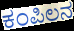
ಕಂಪಿಲನ